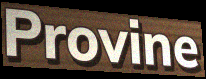
Provine